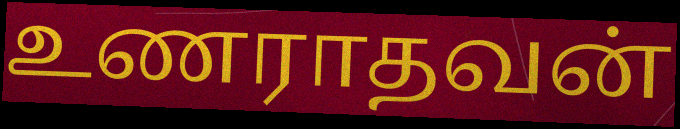
உணராதவன்